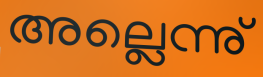
അല്ലെന്നു്